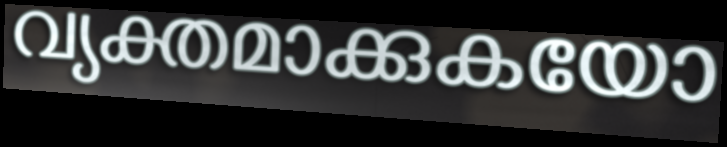
വ്യക്തമാക്കുകയോ